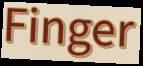
Finger